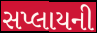
સપ્લાયની